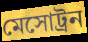
মেসোট্রন